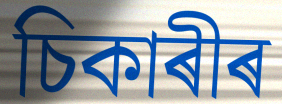
চিকাৰীৰ